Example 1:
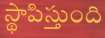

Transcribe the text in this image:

స్థాపిస్తుంది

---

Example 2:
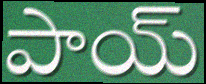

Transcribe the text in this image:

పాయ్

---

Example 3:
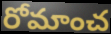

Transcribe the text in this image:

రోమాంచ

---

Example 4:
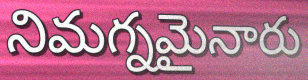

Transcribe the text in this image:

నిమగ్నమైనారు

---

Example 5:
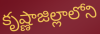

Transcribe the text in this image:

కృష్ణాజిల్లాలోని